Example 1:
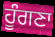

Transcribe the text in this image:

ਹੂੰਗਣਾ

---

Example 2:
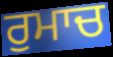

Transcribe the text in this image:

ਰੁਮਾਚ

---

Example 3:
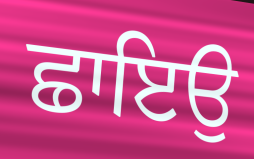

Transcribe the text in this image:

ਛਾਇਉ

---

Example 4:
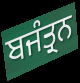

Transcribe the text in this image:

ਬਜੰਤ੍ਰਨ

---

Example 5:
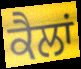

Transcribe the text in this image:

ਕੈਲਾਂ